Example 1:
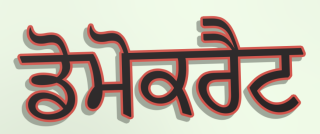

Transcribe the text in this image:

ਡੋਮੋਕਰੈਟ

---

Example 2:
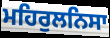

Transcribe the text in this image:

ਮਹਿਰੁਲਨਿਸਾ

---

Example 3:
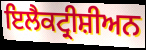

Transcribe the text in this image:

ਇਲੈਕਟ੍ਰੀਸ਼ੀਅਨ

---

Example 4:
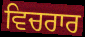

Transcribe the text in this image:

ਵਿਚਰਾਰ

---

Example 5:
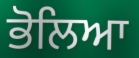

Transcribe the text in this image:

ਭੋਲਿਆ